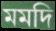
মমদি